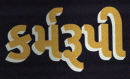
કર્મરૂપી